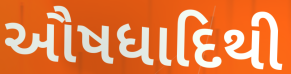
ઔષધાદિથી